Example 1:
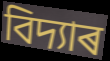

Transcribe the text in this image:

বিদ্যাৰ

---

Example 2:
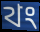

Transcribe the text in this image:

থং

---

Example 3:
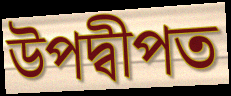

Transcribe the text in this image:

উপদ্বীপত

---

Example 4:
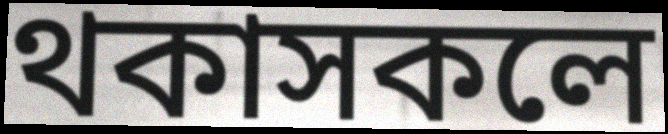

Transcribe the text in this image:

থকাসকলে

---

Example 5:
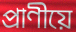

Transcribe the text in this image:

প্ৰাণীয়ে